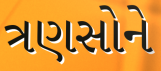
ત્રણસોને